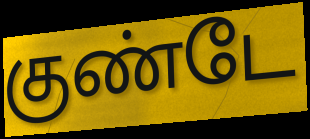
குண்டே